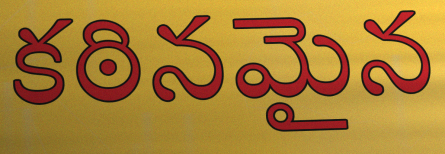
కఠినమైన